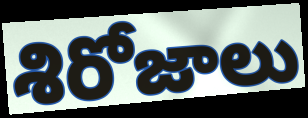
శిరోజాలు